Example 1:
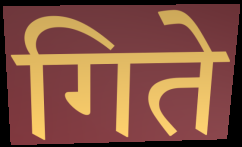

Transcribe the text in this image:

गिते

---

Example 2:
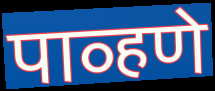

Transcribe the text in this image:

पाव्हणे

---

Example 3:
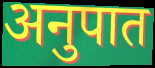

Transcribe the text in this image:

अनुपात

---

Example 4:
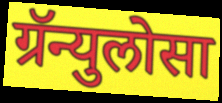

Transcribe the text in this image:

ग्रॅन्युलोसा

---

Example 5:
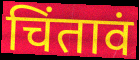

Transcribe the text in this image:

चिंतावं